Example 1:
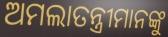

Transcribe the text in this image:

ଅମଲାତନ୍ତ୍ରୀମାନଙ୍କୁ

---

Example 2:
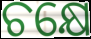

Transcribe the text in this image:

ଚକ୍ଷେ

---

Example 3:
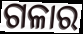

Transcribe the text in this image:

ଗଳାର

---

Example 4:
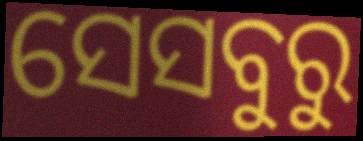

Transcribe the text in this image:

ସେସବୁରୁ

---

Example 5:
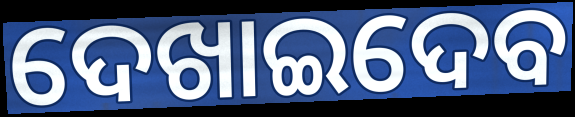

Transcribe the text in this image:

ଦେଖାଇଦେବ